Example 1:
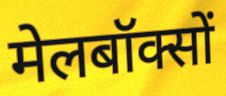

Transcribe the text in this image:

मेलबॉक्सों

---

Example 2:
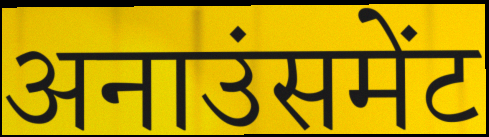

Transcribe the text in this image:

अनाउंसमेंट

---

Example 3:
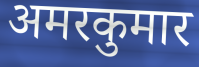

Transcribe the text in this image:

अमरकुमार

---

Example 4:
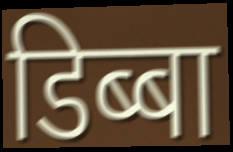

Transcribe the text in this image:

डिब्बा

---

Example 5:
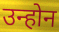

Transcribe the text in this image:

उन्होन